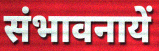
संभावनायें